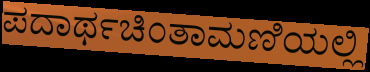
ಪದಾರ್ಥಚಿಂತಾಮಣಿಯಲ್ಲಿ